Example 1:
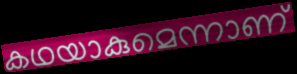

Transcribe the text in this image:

കഥയാകുമെന്നാണ്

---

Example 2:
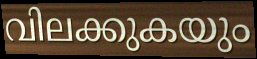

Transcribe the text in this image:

വിലക്കുകയും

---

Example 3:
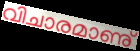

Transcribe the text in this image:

വിചാരമാണു്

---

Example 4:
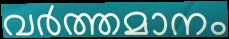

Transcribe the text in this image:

വർത്തമാനം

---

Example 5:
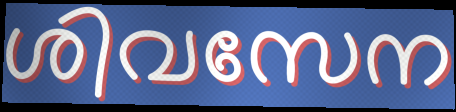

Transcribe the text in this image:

ശിവസേന